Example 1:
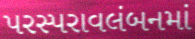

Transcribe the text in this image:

પરસ્પરાવલંબનમાં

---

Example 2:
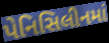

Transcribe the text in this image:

પેનિસિલીનમાં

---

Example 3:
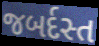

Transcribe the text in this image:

જબર્દસ્ત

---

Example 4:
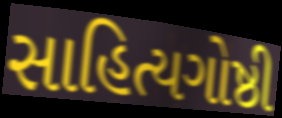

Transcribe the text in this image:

સાહિત્યગોષ્ઠી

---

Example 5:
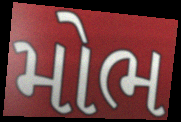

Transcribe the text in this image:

મોભ